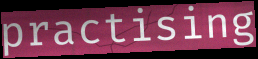
practising